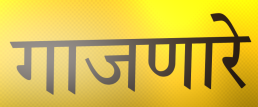
गाजणारे